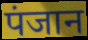
पंजान